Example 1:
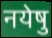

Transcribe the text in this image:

नयेषु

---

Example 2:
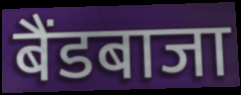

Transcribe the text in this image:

बैंडबाजा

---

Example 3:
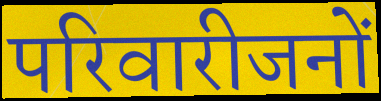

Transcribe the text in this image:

परिवारीजनों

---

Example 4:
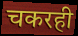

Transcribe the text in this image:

चकरही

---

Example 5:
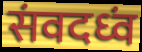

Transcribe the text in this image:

संवदध्वं